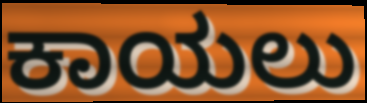
ಕಾಯಲು